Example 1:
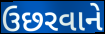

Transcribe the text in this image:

ઉછરવાને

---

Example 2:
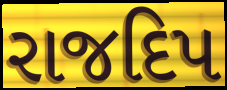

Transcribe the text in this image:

રાજદિપ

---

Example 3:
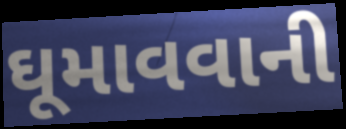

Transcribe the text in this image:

ઘૂમાવવાની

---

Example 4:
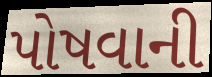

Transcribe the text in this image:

પોષવાની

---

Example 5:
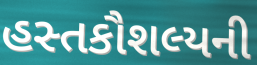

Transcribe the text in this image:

હસ્તકૌશલ્યની